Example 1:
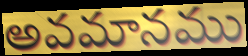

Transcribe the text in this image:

అవమానము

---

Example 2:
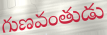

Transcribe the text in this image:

గుణవంతుడు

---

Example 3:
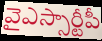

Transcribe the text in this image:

వైఎస్సార్టీపీ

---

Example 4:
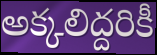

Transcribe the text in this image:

అక్కలిద్దరికీ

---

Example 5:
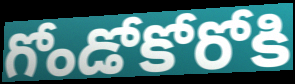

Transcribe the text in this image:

గోండోకోరోకి